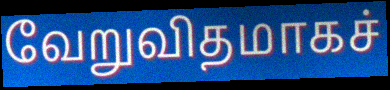
வேறுவிதமாகச்